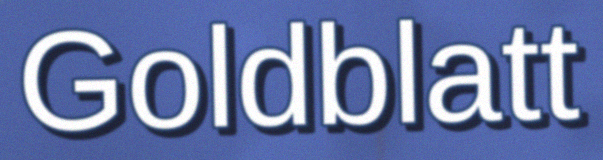
Goldblatt